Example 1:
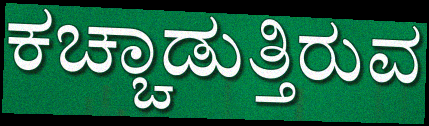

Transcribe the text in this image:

ಕಚ್ಚಾಡುತ್ತಿರುವ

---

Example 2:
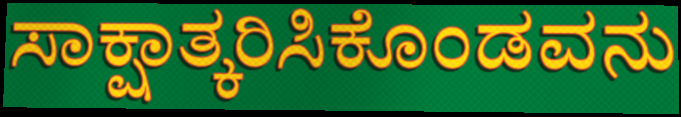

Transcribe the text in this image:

ಸಾಕ್ಷಾತ್ಕರಿಸಿಕೊಂಡವನು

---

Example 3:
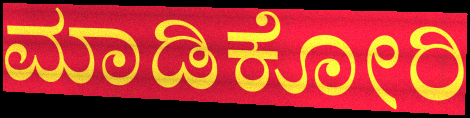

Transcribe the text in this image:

ಮಾಡಿಕೋರಿ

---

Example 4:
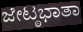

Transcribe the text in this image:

ಜೇಟ್ಠಭಾತಾ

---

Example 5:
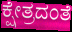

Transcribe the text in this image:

ಕ್ಷೇತ್ರದಂತೆ